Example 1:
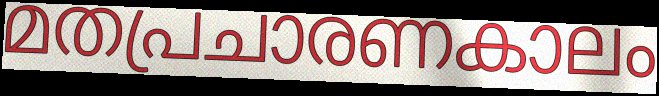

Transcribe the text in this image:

മതപ്രചാരണകാലം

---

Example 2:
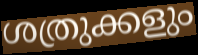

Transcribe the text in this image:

ശത്രുക്കളും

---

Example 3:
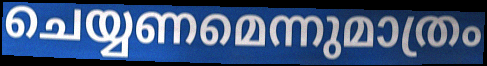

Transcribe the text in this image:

ചെയ്യണമെന്നുമാത്രം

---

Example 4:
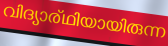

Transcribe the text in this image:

വിദ്യാര്ഥിയായിരുന്ന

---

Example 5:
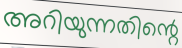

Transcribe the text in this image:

അറിയുന്നതിന്റെ